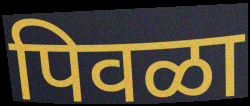
पिवळा